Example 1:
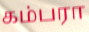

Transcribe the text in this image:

கம்பரா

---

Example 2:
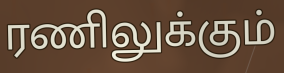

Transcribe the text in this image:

ரணிலுக்கும்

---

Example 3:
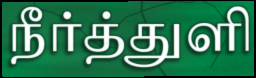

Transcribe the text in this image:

நீர்த்துளி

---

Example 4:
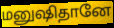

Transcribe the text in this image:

மனுஷிதானே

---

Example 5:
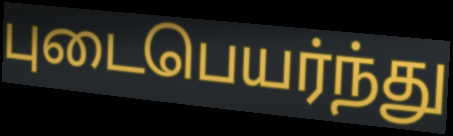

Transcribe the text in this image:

புடைபெயர்ந்து